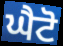
ਘੈਟੋ